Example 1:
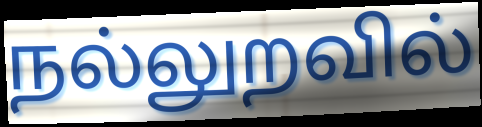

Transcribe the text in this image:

நல்லுறவில்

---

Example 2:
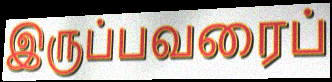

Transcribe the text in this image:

இருப்பவரைப்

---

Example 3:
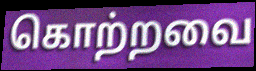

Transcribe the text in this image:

கொற்றவை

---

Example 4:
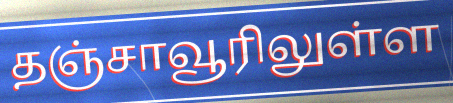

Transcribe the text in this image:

தஞ்சாவூரிலுள்ள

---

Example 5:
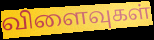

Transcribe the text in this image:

விளைவுகள்